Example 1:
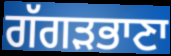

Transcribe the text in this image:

ਗੱਗੜਭਾਣਾ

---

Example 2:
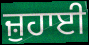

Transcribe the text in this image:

ਜ਼ੁਹਾਈ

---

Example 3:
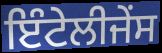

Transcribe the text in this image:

ਇੰਟੇਲੀਜੇੰਸ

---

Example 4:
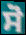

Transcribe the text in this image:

ਸੋ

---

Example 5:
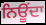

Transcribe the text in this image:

ਨਿਊਂਦਾ